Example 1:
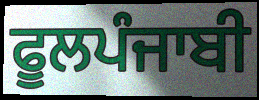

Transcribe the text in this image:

ਫੂਲਪੰਜਾਬੀ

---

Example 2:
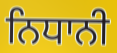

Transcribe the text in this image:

ਨਿਧਾਨੀ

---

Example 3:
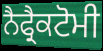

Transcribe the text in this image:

ਨੈਫ੍ਰੈਕਟੋਮੀ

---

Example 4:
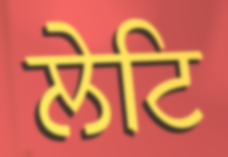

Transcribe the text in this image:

ਲੇਟਿ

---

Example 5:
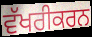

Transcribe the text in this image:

ਵੱਖਰੀਕਰਨ